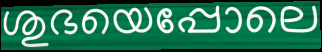
ശുഭയെപ്പോലെ